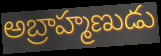
అబ్రాహ్మణుడు